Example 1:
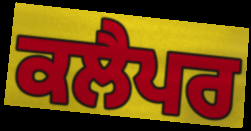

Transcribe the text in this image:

ਕਲੈਪਰ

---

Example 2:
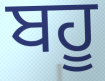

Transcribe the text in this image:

ਬਹੂ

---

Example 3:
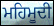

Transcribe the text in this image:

ਮਹਿਮੂਦੀ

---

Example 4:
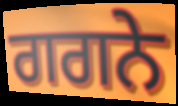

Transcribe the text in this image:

ਗਗਨੇ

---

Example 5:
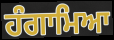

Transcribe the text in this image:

ਹੰਗਾਮਿਆ